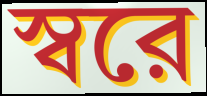
স্বরে